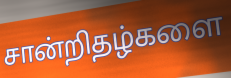
சான்றிதழ்களை